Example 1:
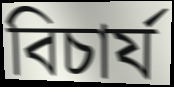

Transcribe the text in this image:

বিচাৰ্য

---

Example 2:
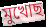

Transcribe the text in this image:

মুখোছ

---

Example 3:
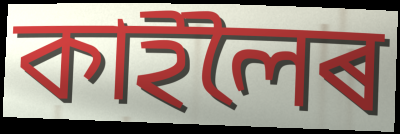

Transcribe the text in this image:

কাইলৈৰ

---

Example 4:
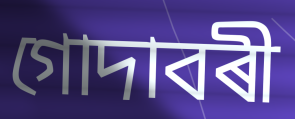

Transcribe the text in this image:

গোদাবৰী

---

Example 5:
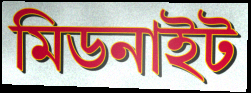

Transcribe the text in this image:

মিডনাইট